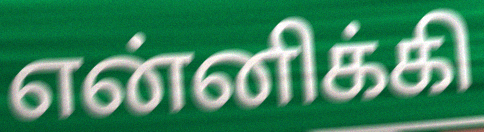
என்னிக்கி